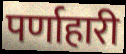
पर्णाहारी